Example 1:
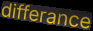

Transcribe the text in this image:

differance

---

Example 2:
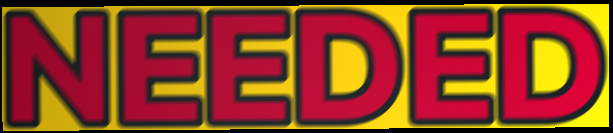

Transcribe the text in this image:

NEEDED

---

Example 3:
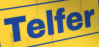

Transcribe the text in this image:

Telfer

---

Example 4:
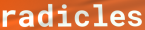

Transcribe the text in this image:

radicles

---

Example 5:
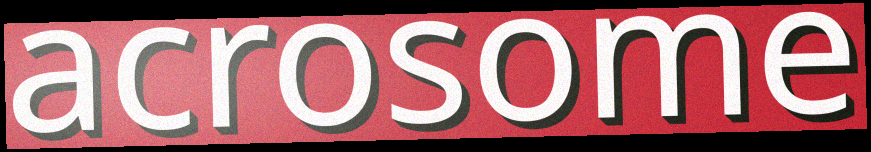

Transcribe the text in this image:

acrosome